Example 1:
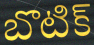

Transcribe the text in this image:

బొటిక్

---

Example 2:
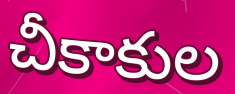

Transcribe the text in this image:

చీకాకుల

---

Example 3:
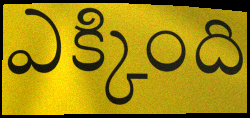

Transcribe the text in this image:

ఎక్కింది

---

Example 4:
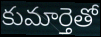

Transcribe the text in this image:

కుమార్తెతో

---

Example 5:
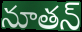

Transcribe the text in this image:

నూతన్